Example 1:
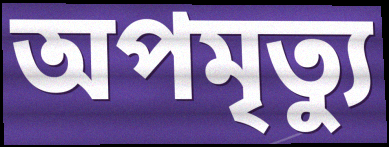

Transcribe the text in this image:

অপমৃত্যু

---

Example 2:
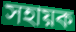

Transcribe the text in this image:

সহায়ক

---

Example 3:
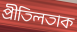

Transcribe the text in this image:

প্ৰীতিলতাক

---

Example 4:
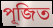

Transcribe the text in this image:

পূজিত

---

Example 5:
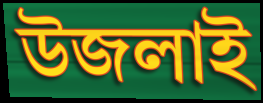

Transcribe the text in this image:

উজলাই